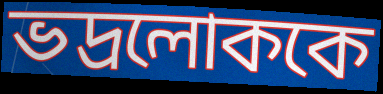
ভদ্রলোককে